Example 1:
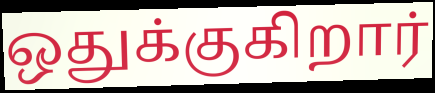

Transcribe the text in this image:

ஒதுக்குகிறார்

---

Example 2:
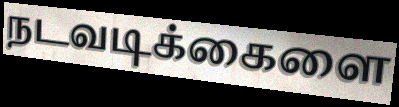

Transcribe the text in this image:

நடவடிக்கைளை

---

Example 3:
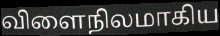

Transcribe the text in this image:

விளைநிலமாகிய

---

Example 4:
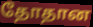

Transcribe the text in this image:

தோதான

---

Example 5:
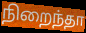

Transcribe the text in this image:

நிறைந்தா